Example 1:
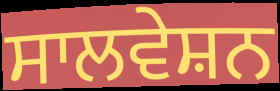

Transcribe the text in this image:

ਸਾਲਵੇਸ਼ਨ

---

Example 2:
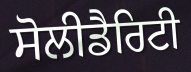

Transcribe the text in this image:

ਸੋਲੀਡੈਰਿਟੀ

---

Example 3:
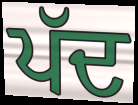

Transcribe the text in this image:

ਪੱਦ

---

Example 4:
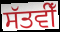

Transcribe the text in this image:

ਸੱਤਵੀਁ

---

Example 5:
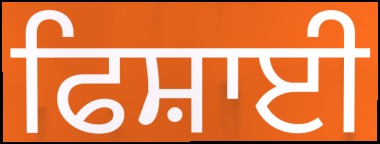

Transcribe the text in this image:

ਫਿਸ਼ਾਈ